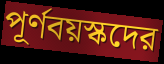
পূর্ণবয়স্কদের